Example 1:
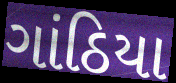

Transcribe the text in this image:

ગાંઠિયા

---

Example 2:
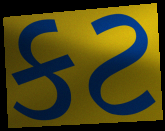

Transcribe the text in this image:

કટ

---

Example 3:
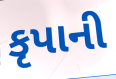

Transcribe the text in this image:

કૃપાની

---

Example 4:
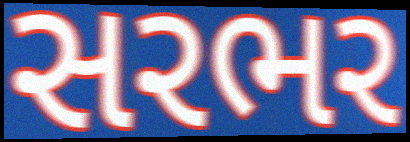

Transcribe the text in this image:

સરભર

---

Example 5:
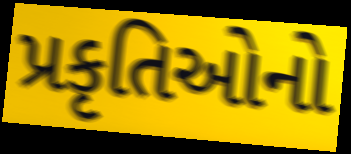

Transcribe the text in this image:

પ્રકૃતિઓનો